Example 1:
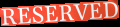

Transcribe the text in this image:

RESERVED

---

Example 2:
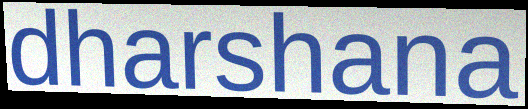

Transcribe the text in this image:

dharshana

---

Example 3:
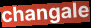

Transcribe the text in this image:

changale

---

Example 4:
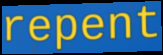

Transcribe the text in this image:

repent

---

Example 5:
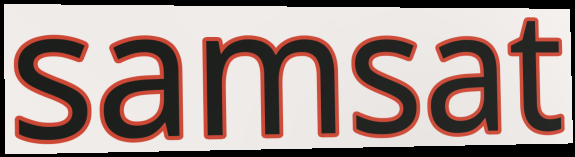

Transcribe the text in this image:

samsat